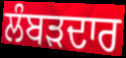
ਲੰਬੜਦਾਰ